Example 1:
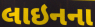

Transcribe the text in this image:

લાઇનના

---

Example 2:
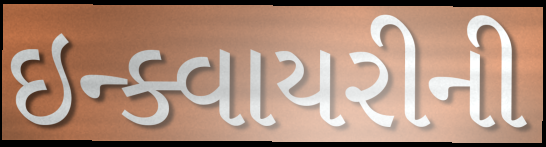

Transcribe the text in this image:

ઇન્ક્વાયરીની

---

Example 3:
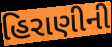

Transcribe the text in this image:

હિરાણીની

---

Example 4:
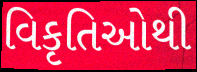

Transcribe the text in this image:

વિકૃતિઓથી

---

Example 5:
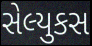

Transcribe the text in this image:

સેલ્યુકસ